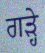
ਗੜ੍ਹੇ